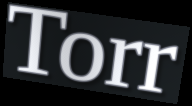
Torr